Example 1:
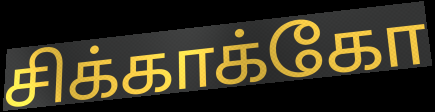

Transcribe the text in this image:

சிக்காக்கோ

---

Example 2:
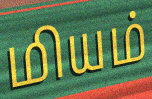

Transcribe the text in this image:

மியம்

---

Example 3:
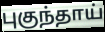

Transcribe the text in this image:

புகுந்தாய்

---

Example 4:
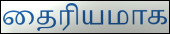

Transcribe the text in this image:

தைரியமாக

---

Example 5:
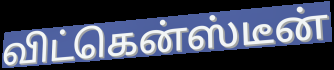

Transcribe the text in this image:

விட்கென்ஸ்டீன்